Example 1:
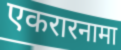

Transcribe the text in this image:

एकरारनामा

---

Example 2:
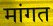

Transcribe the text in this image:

मांगत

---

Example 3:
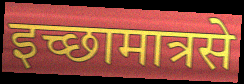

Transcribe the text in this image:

इच्छामात्रसे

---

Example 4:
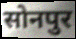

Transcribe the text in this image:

सोनपुर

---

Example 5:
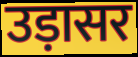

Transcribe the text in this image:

उड़ासर